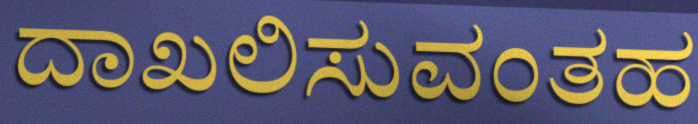
ದಾಖಲಿಸುವಂತಹ